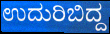
ಉದುರಿಬಿದ್ದ